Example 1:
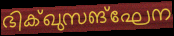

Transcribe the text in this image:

ഭിക്ഖുസങ്ഘേന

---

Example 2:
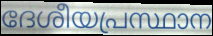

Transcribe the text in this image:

ദേശീയപ്രസ്ഥാന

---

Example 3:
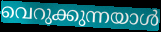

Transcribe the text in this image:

വെറുക്കുന്നയാൾ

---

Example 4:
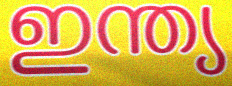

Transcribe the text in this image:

ഇന്ത്യ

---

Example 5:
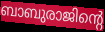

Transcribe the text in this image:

ബാബുരാജിന്റെ